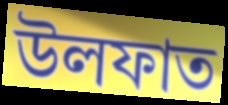
উলফাত